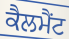
ਕੈਲਮੈਂਟ